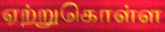
ஏற்றுகொள்ள